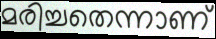
മരിച്ചതെന്നാണ്